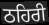
ਠਹਿਰੀ